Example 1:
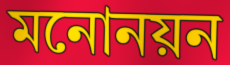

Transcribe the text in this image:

মনোনয়ন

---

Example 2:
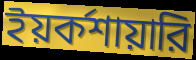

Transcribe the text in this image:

ইয়র্কশায়ারি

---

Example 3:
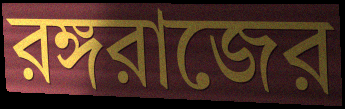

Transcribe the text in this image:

রঙ্গরাজের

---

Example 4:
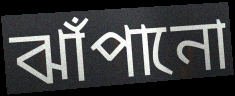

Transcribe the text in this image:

ঝাঁপানো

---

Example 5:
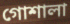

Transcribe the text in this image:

গোশালা